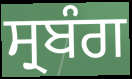
ਸ੍ਰਬੰਗ